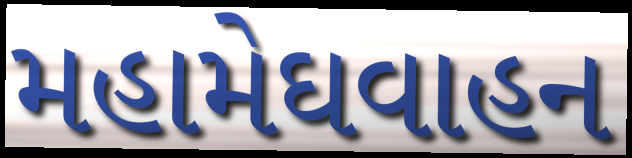
મહામેઘવાહન